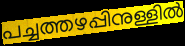
പച്ചത്തഴപ്പിനുള്ളിൽ